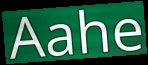
Aahe